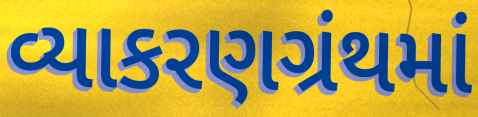
વ્યાકરણગ્રંથમાં